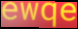
ewqe